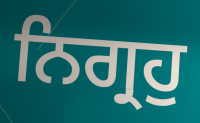
ਨਿਗ੍ਰਹੁ